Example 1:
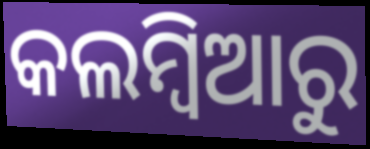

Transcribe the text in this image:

କଲମ୍ବିଆରୁ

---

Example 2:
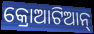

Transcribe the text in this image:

କ୍ରୋଆଟିଆନ୍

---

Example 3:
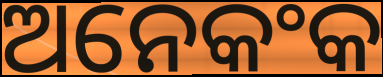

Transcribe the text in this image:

ଅନେକଂକ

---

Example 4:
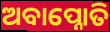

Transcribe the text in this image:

ଅବାପ୍ନୋତି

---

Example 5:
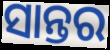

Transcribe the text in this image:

ସାନ୍ତର